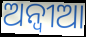
ଅନ୍ବୀଆ